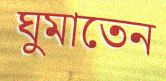
ঘুমাতেন